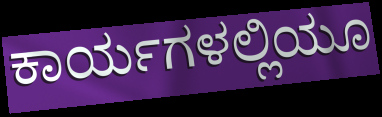
ಕಾರ್ಯಗಳಲ್ಲಿಯೂ